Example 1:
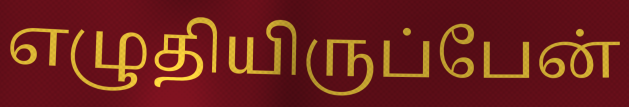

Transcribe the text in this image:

எழுதியிருப்பேன்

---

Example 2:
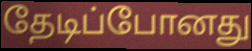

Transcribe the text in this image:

தேடிப்போனது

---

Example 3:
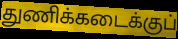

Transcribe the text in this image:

துணிக்கடைக்குப்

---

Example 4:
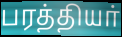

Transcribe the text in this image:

பரத்தியர்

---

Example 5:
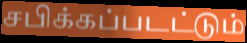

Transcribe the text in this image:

சபிக்கப்படட்டும்